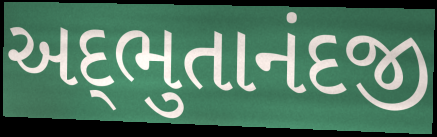
અદ્‌ભુતાનંદજી